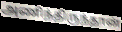
அணிந்திருந்தான்